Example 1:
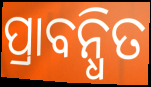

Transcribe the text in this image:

ପ୍ରାବନ୍ଧିତ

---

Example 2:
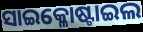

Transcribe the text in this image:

ସାଇକ୍ଳୋଷ୍ଟାଇଲ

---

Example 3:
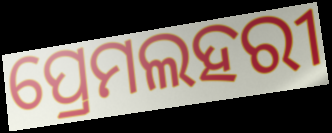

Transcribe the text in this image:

ପ୍ରେମଲହରୀ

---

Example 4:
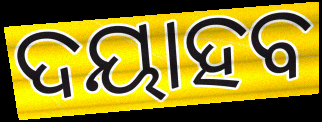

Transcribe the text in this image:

ଦୟାହବ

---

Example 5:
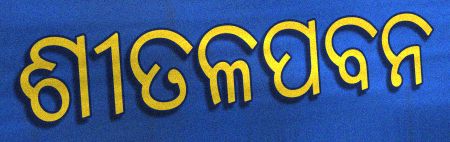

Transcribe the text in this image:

ଶୀତଳପବନ